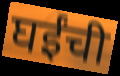
घईंची